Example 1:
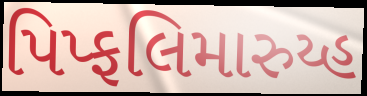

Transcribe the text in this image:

પિપ્ફલિમારુય્હ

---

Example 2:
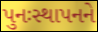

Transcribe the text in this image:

પુનઃસ્થાપનને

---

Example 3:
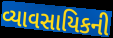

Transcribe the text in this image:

વ્યાવસાયિકની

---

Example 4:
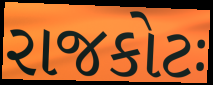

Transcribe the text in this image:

રાજકોટઃ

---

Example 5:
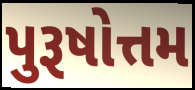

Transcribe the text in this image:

પુરૂષોત્તમ